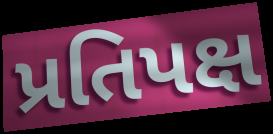
પ્રતિપક્ષ